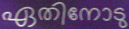
ഏതിനോടു